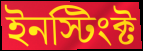
ইনস্টিংক্ট